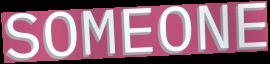
SOMEONE